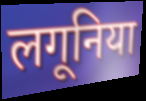
लगूनिया